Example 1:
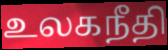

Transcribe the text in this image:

உலகநீதி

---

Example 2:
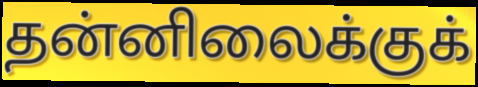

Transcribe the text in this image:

தன்னிலைக்குக்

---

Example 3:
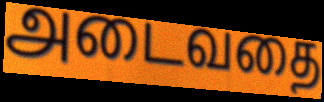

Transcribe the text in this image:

அடைவதை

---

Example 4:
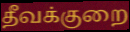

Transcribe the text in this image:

தீவக்குறை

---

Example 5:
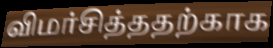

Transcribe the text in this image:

விமர்சித்ததற்காக